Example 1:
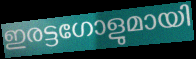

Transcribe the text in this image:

ഇരട്ടഗോളുമായി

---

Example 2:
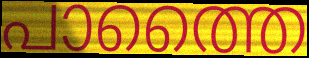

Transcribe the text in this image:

പാത്തൈ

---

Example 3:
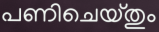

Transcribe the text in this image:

പണിചെയ്തും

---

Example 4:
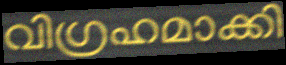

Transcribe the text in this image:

വിഗ്രഹമാക്കി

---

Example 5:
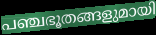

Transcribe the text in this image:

പഞ്ചഭൂതങ്ങളുമായി